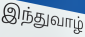
இந்துவாழ்